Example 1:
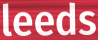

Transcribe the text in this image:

leeds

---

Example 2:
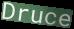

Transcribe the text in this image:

Druce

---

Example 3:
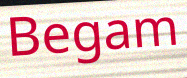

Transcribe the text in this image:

Begam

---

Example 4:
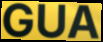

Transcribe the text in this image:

GUA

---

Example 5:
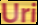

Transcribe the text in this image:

Uri